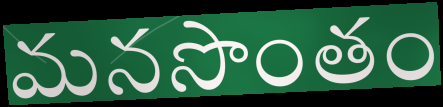
మనసొంతం